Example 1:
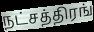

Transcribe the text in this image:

நட்சத்திரங்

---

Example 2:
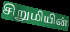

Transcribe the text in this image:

சிறுமியின்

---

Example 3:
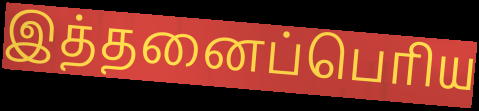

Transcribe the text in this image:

இத்தனைப்பெரிய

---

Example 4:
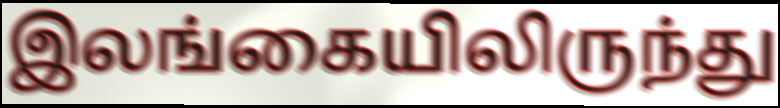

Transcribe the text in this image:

இலங்கையிலிருந்து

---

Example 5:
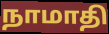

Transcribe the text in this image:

நாமாதி